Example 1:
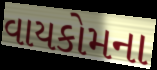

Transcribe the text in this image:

વાયકોમના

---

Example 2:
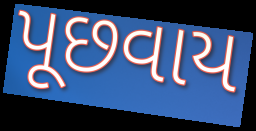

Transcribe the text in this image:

પૂછવાય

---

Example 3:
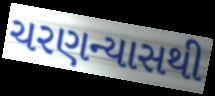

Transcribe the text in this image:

ચરણન્યાસથી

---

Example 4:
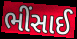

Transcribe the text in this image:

ભીંસાઈ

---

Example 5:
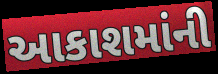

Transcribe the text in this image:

આકાશમાંની